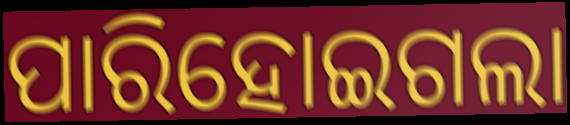
ପାରିହୋଇଗଲା